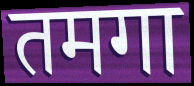
तमगा